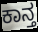
ಕಾನ್ತ